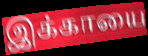
இக்காயை